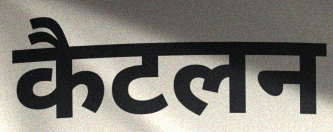
कैटलन